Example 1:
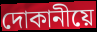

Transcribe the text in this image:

দোকানীয়ে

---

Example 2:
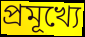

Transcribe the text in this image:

প্ৰমূখ্যে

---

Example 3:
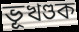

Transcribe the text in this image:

ভূখণ্ডক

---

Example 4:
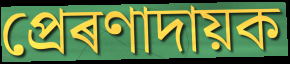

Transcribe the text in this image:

প্ৰেৰণাদায়ক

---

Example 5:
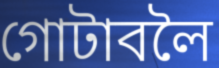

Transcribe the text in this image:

গোটাবলৈ